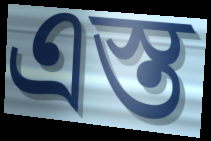
এস্ত